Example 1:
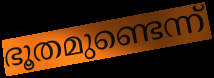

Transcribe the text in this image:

ഭൂതമുണ്ടെന്ന്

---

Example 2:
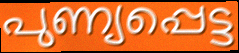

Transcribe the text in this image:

പുണ്യപ്പെട്ട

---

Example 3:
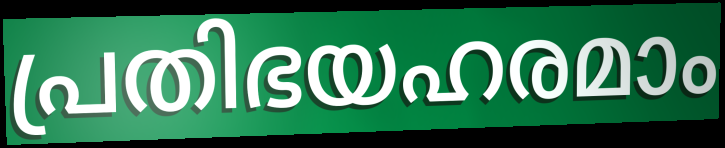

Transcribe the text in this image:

പ്രതിഭയഹരമാം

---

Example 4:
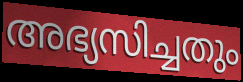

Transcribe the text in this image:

അഭ്യസിച്ചതും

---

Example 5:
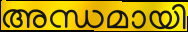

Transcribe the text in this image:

അന്ധമായി